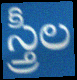
స్త్రీల